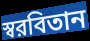
স্বরবিতান